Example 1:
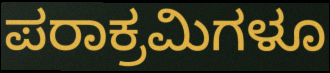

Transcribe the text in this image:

ಪರಾಕ್ರಮಿಗಳೂ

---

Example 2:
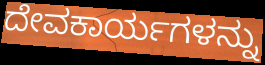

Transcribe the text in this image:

ದೇವಕಾರ್ಯಗಳನ್ನು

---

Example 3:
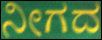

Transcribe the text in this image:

ನೀಗದ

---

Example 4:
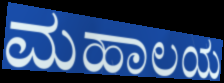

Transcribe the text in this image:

ಮಹಾಲಯ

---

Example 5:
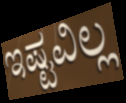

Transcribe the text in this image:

ಇಷ್ಟವಿಲ್ಲ